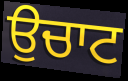
ਉਚਾਟ